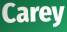
Carey